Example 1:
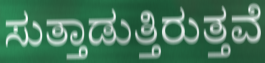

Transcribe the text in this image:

ಸುತ್ತಾಡುತ್ತಿರುತ್ತವೆ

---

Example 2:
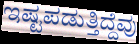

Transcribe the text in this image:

ಇಷ್ಟಪಡುತ್ತಿದ್ದೆವು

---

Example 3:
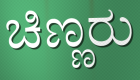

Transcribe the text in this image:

ಚಿಣ್ಣರು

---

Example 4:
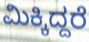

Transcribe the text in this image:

ಮಿಕ್ಕಿದ್ದರೆ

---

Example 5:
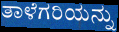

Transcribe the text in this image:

ತಾಳೆಗರಿಯನ್ನು